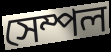
সেম্পল